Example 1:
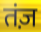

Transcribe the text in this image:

तंज़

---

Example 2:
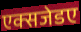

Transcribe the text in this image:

एक्सजेडए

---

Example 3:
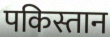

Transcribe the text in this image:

पकिस्तान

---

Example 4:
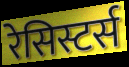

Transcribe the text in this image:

रेसिस्टर्स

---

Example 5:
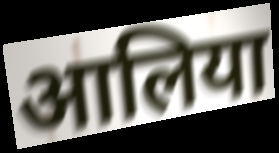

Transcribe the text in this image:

आलिया